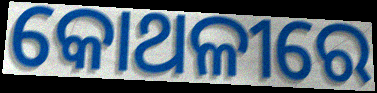
କୋଥଳୀରେ